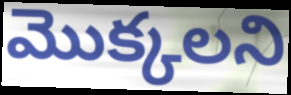
మొక్కలని